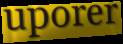
uporer